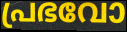
പ്രഭവോ